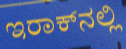
ಇರಾಕ್‍ನಲ್ಲಿ